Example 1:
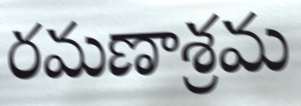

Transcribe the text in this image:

రమణాశ్రమ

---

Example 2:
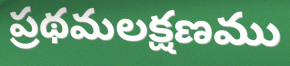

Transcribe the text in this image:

ప్రథమలక్షణము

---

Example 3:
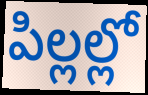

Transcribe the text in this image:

పిల్లల్లో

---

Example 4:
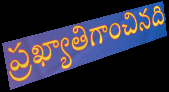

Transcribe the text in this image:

ప్రఖ్యాతిగాంచినది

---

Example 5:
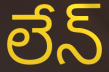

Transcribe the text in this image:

లేన్